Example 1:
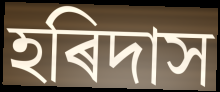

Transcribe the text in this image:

হৰিদাস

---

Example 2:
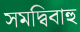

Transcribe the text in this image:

সমদ্বিবাহু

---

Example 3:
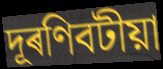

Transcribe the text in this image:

দূৰণিবটীয়া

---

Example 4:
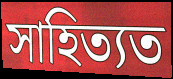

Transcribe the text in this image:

সাহিত্যত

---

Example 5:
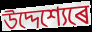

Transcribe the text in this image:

উদ্দেশ্যেৰে